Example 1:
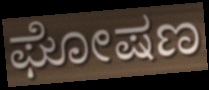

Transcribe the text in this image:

ಘೋಷಣ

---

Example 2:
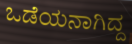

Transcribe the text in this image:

ಒಡೆಯನಾಗಿದ್ದ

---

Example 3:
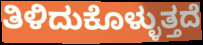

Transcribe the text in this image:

ತಿಳಿದುಕೊಳ್ಳುತ್ತದೆ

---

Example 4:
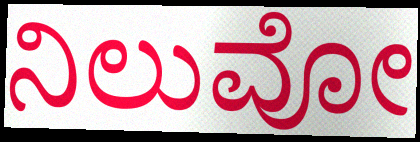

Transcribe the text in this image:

ನಿಲುವೋ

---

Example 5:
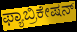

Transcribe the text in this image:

ಫ್ಯಾಬ್ರಿಕೇಷನ್